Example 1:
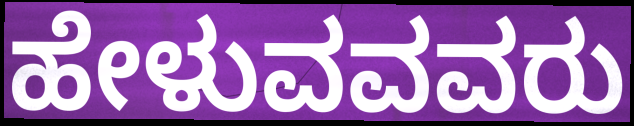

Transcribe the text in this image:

ಹೇಳುವವವರು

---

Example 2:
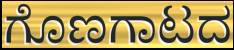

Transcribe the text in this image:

ಗೊಣಗಾಟದ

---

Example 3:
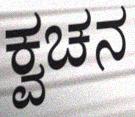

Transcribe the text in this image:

ಕ್ವಚನ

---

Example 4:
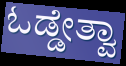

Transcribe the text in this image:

ಓಡ್ಡೇತ್ವಾ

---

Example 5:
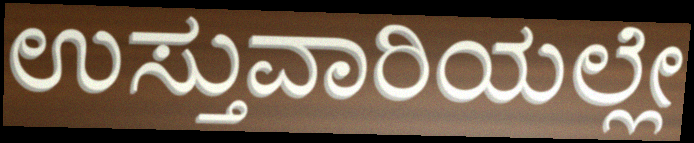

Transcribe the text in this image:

ಉಸ್ತುವಾರಿಯಲ್ಲೇ